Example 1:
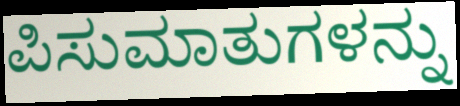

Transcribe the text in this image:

ಪಿಸುಮಾತುಗಳನ್ನು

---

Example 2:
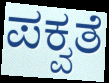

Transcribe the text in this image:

ಪಕ್ವತೆ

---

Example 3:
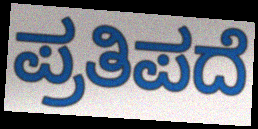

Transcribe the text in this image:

ಪ್ರತಿಪದೆ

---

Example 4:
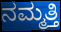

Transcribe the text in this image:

ನಮ್ಮತ್ತಿ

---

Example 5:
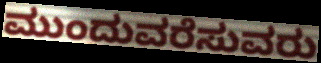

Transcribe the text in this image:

ಮುಂದುವರೆಸುವರು